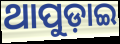
ଥାପୁଡ଼ାଇ